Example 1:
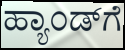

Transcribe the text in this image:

ಹ್ಯಾಂಡ್‌ಗೆ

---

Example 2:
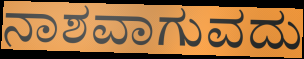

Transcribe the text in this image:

ನಾಶವಾಗುವದು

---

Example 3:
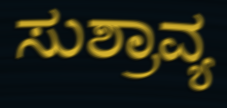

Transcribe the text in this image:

ಸುಶ್ರಾವ್ಯ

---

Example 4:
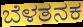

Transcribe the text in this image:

ಬೆಳತನಕ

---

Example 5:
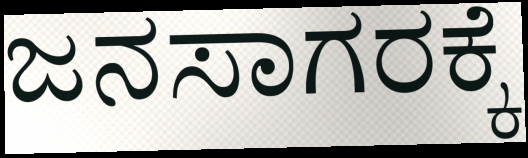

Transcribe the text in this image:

ಜನಸಾಗರಕ್ಕೆ